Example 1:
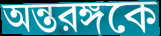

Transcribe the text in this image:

অন্তরঙ্গকে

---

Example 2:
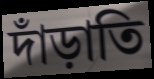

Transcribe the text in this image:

দাঁড়াতি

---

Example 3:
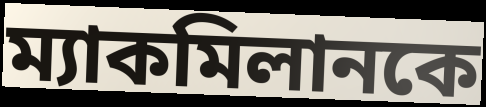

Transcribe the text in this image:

ম্যাকমিলানকে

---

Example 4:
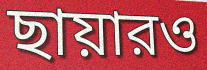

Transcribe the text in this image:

ছায়ারও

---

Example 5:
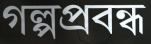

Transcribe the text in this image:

গল্পপ্রবন্ধ